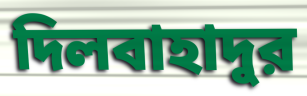
দিলবাহাদুর